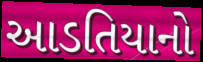
આડતિયાનો